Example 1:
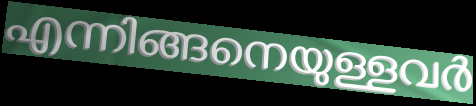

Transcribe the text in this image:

എന്നിങ്ങനെയുള്ളവർ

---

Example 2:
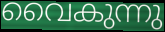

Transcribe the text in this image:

വൈകുന്നു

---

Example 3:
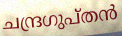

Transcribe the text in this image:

ചന്ദ്രഗുപ്തൻ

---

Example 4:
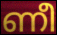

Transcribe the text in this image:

ണീ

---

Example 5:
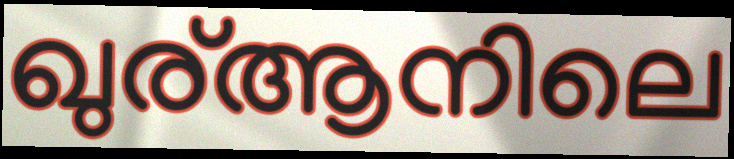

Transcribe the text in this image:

ഖുര്ആനിലെ